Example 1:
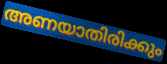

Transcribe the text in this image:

അണയാതിരിക്കും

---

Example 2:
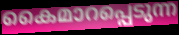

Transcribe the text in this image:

കൈമാറപ്പെടുന്ന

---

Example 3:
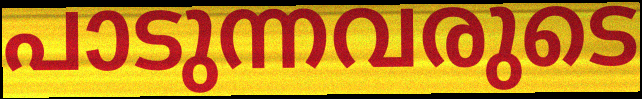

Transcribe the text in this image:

പാടുന്നവരുടെ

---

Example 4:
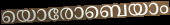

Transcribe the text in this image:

യൊരോബെയാം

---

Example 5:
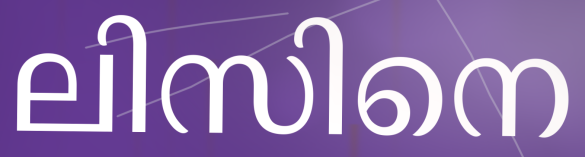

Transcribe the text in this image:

ലിസിനെ